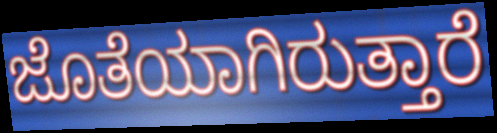
ಜೊತೆಯಾಗಿರುತ್ತಾರೆ